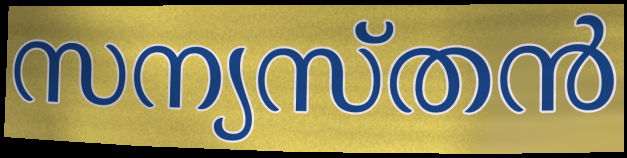
സന്യസ്തൻ